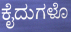
ಕೈದುಗಳೊ